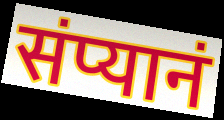
संप्यानं